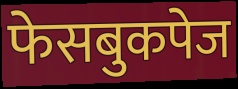
फेसबुकपेज